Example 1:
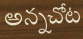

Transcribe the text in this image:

అన్నచోట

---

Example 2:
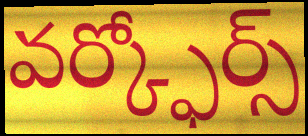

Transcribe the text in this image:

వర్క్ఫోర్స్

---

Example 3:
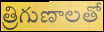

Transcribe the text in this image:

త్రిగుణాలతో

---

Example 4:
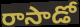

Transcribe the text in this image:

రాసాడో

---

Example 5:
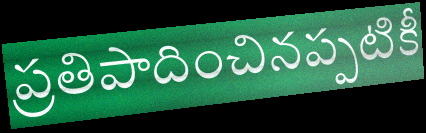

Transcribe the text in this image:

ప్రతిపాదించినప్పటికీ